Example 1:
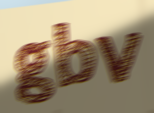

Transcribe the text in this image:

gbv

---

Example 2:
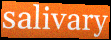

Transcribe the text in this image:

salivary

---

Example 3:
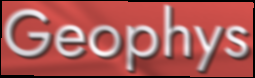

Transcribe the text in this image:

Geophys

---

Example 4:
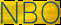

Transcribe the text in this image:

NBO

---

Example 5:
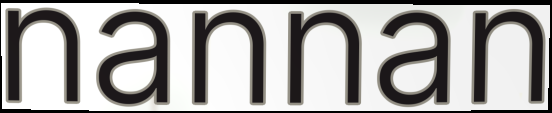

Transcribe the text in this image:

nannan